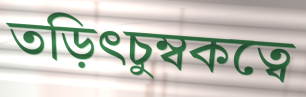
তড়িৎচুম্বকত্বে